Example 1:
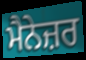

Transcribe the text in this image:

ਮੈਨੇਜ਼ਰ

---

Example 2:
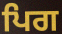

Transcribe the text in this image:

ਪਿਗ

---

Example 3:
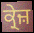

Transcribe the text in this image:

ਕ੍ਰੇਜ਼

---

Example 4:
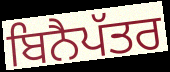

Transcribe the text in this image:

ਬਿਨੈਪੱਤਰ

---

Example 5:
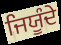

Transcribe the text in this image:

ਜਿਯੂੰਦੇ